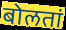
बोलतां